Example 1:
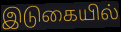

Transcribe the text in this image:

இடுகையில்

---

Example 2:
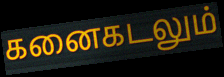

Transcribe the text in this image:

கனைகடலும்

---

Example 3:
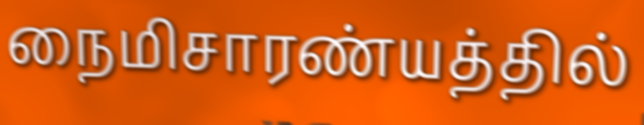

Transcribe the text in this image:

நைமிசாரண்யத்தில்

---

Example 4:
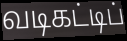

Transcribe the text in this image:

வடிகட்டிப்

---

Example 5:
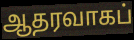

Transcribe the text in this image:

ஆதரவாகப்